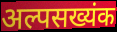
अल्पसख्यंक